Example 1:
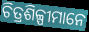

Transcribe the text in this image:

ଚିତ୍ରଶିଳ୍ପୀମାନେ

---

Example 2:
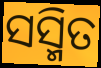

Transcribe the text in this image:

ସସ୍ମିତ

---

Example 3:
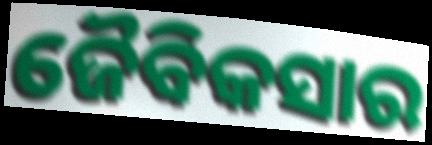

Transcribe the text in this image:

ଜୈବିକସାର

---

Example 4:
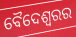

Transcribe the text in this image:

ବୈଦେଶ୍ୱରର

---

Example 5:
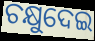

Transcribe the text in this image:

ଚକ୍ଷୁଦେଇ